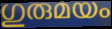
ഗുരുമയം